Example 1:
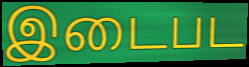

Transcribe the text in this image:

இடைபட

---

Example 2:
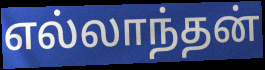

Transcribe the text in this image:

எல்லாந்தன்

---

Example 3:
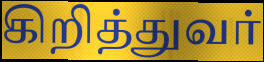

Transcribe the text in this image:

கிறித்துவர்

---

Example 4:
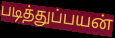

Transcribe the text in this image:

படித்துப்பயன்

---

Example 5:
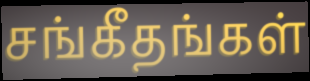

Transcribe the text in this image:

சங்கீதங்கள்